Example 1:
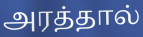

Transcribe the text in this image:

அரத்தால்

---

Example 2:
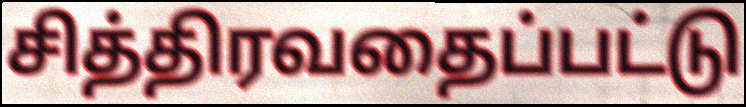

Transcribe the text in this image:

சித்திரவதைப்பட்டு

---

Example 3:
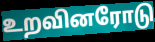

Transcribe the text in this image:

உறவினரோடு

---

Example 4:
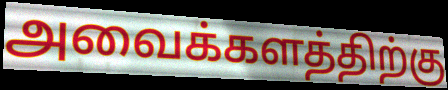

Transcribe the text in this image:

அவைக்களத்திற்கு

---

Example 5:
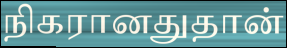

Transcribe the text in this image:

நிகரானதுதான்